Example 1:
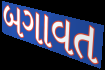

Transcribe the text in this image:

બગાવત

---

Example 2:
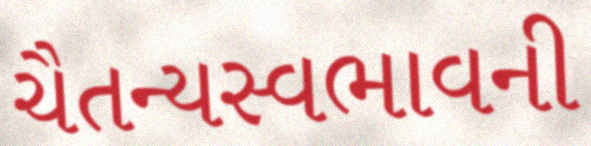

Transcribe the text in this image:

ચૈતન્યસ્વભાવની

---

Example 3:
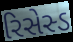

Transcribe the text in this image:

રિસેસ્ડ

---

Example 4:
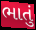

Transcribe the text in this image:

ભાતું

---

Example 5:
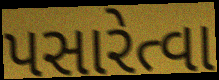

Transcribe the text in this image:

પસારેત્વા